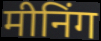
मीनिंग